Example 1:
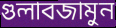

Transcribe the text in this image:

গুলাবজামুন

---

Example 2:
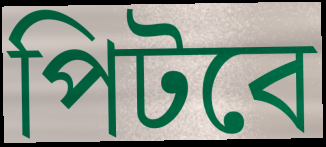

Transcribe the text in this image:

পিটবে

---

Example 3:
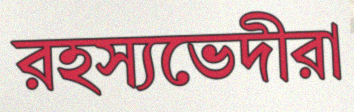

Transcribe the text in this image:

রহস্যভেদীরা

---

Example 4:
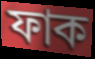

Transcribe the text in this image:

ফাক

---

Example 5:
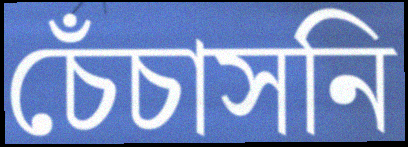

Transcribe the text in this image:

চেঁচাসনি